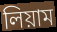
লিয়াম